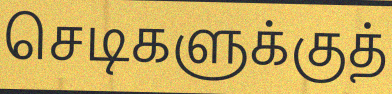
செடிகளுக்குத்